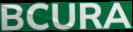
BCURA